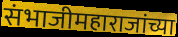
संभाजीमहाराजांच्या